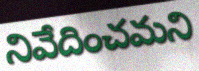
నివేదించమని